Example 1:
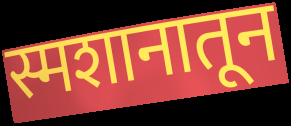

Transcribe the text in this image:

स्मशानातून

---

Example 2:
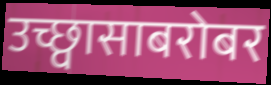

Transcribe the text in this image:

उच्छ्वासाबरोबर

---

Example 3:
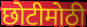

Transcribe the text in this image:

छोटीमोठी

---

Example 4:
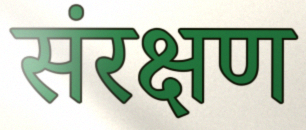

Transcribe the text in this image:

संरक्षण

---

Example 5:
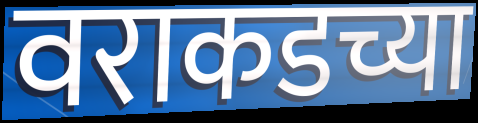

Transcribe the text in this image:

वराकडच्या